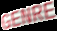
GENRE